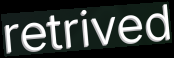
retrived